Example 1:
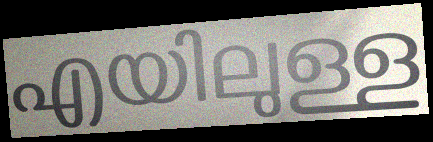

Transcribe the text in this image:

എയിലുള്ള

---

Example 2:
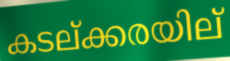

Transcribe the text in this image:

കടല്ക്കരയില്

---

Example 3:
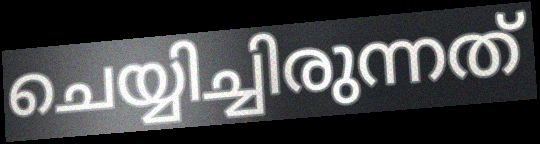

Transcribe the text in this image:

ചെയ്യിച്ചിരുന്നത്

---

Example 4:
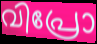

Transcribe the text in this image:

വിപ്രോ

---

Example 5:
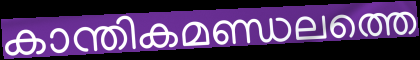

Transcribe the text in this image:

കാന്തികമണ്ഡലത്തെ